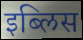
इब्लिस